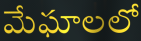
మేఘాలలో